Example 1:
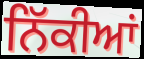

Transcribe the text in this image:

ਨਿੱਕੀਆਂ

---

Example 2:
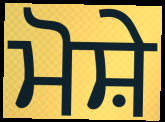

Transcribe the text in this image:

ਮੋਸ਼ੇ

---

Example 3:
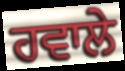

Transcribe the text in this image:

ਹਵਾਲੇ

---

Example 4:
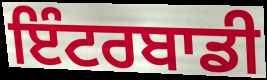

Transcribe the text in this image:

ਇੰਟਰਬਾਡੀ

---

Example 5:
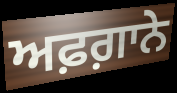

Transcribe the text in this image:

ਅਫ਼ਗ਼ਾਨੇ